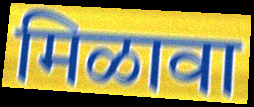
मिळावा